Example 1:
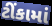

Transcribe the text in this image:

ટીંકામાં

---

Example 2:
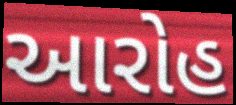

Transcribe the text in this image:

આરોહ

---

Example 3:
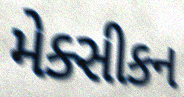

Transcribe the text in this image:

મેક્સીકન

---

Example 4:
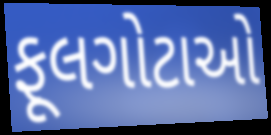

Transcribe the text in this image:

ફૂલગોટાઓ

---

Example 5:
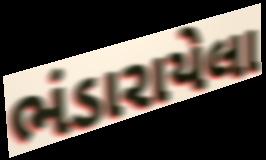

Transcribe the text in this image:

ભંડારાયેલા